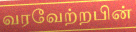
வரவேற்றபின்